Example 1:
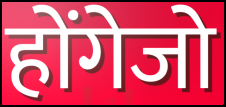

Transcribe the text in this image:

होंगेजो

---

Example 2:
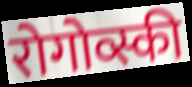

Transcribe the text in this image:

रोगोव्स्की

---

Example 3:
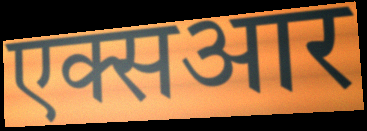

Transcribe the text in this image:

एक्सआर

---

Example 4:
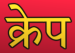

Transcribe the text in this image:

क्रेप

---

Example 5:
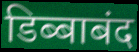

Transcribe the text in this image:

डिब्बाबंद